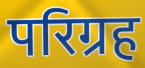
परिग्रह